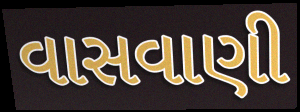
વાસવાણી